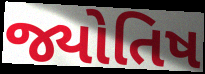
જ્યોતિષ